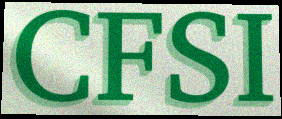
CFSI